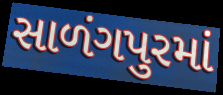
સાળંગપુરમાં